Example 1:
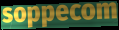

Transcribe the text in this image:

soppecom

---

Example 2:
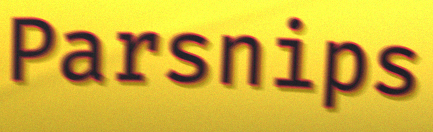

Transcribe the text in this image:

Parsnips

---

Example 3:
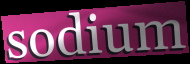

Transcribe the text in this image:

sodium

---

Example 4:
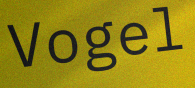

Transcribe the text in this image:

Vogel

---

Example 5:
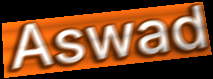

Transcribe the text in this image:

Aswad